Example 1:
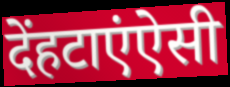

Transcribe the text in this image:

देंहटाएंऐसी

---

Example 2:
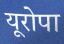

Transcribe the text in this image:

यूरोपा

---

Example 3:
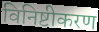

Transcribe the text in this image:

विनिष्टीकरण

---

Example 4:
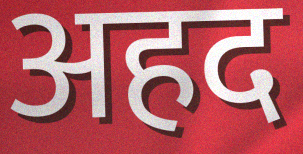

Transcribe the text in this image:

अहद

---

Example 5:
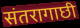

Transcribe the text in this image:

संतरागाछी